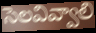
సెలవివ్వాలి